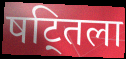
षट्तिला